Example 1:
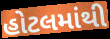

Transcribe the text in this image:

હોટલમાંથી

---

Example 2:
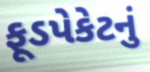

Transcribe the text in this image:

ફૂડપેકેટનું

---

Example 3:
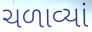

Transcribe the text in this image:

ચળાવ્યાં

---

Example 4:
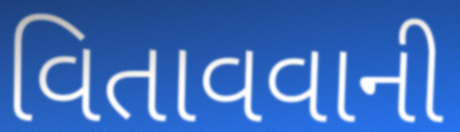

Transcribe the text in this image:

વિતાવવાની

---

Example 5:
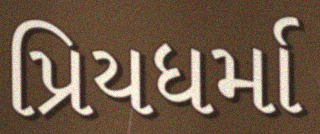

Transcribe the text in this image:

પ્રિયધર્મા